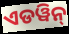
ଏଡୱିନ୍